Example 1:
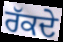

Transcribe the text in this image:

ਰੱਕਦੇ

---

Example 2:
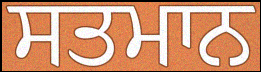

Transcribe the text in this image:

ਸਤਮਾਨ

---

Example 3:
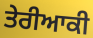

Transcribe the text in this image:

ਤੇਰੀਆਕੀ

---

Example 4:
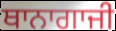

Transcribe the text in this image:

ਥਾਨਾਗਾਜੀ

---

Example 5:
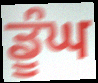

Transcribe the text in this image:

ਡੂੰਘ